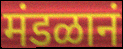
मंडळानं